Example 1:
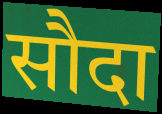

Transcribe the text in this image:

सौदा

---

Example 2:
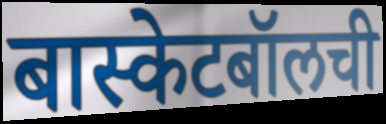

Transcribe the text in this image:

बास्केटबॉलची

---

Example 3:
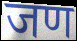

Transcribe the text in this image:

जण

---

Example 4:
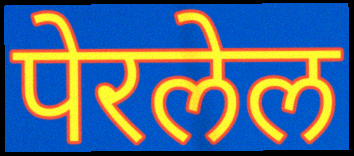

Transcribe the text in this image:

पेरलेल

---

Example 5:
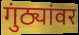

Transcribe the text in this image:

गुंठ्यांवर